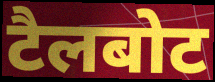
टैलबोट